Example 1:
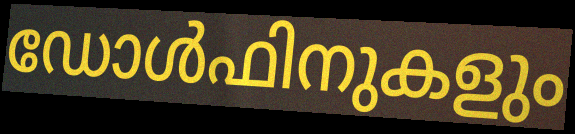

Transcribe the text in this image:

ഡോൾഫിനുകളും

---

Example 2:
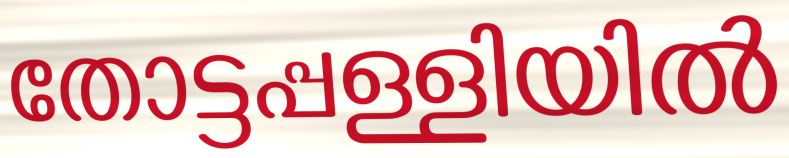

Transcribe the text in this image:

തോട്ടപ്പള്ളിയിൽ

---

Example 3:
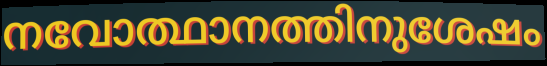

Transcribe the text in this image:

നവോത്ഥാനത്തിനുശേഷം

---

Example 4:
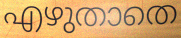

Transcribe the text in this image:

എഴുതാതെ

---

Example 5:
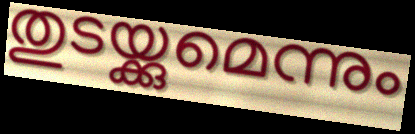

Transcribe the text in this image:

തുടയ്ക്കുമെന്നും